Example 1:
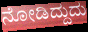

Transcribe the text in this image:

ನೋಡಿದ್ದುದು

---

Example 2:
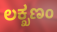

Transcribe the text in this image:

ಲಕ್ಖಣಂ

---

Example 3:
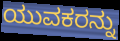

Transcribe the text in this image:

ಯುವಕರನ್ನು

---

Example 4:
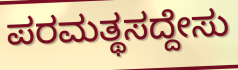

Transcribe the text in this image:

ಪರಮತ್ಥಸದ್ದೇಸು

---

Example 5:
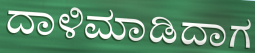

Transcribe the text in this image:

ದಾಳಿಮಾಡಿದಾಗ